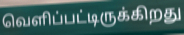
வெளிப்பட்டிருக்கிறது